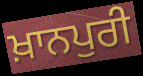
ਖ਼ਾਨਪੁਰੀ